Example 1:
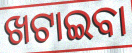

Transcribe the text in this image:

ଖଟାଇବା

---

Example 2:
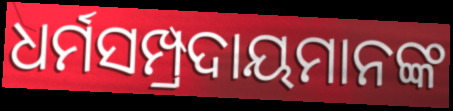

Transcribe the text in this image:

ଧର୍ମସମ୍ପ୍ରଦାୟମାନଙ୍କ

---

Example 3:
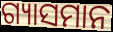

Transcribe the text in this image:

ଗ୍ୟାସମାନ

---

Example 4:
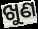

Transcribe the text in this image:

ଖୁଣ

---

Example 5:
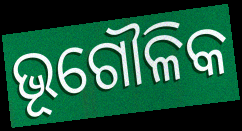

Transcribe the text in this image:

ଭୂଗୌଳିକ